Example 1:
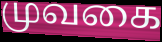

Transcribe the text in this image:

முவகை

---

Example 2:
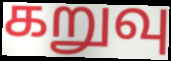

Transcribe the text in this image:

கறுவு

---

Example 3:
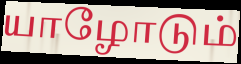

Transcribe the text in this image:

யாழோடும்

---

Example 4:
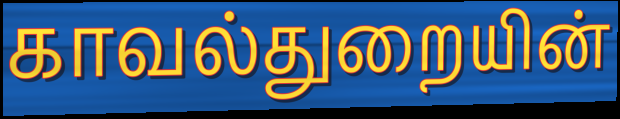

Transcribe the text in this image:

காவல்துறையின்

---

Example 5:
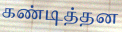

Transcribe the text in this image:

கண்டித்தன